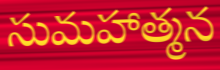
సుమహాత్మన